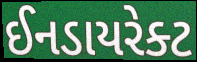
ઈનડાયરેક્ટ